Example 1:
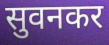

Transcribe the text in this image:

सुवनकर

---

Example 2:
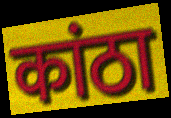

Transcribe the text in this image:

कांठा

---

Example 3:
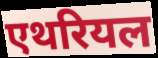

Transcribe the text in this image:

एथरियल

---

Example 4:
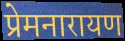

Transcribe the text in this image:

प्रेमनारायण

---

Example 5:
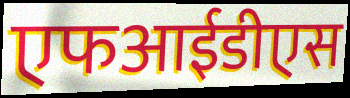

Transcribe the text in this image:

एफआईडीएस